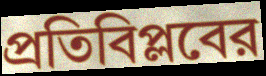
প্রতিবিপ্লবের